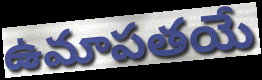
ఉమాపతయే